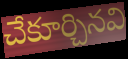
చేకూర్చినవి